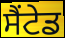
ਸੈਂਟੇਡ